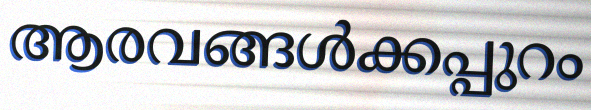
ആരവങ്ങൾക്കപ്പുറം